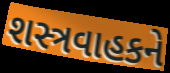
શસ્ત્રવાહકને